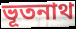
ভূতনাথ